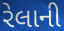
રેલાની